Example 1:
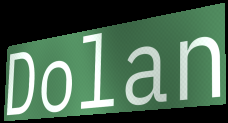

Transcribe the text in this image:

Dolan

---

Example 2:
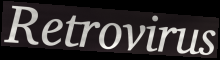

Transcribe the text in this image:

Retrovirus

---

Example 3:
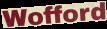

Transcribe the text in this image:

Wofford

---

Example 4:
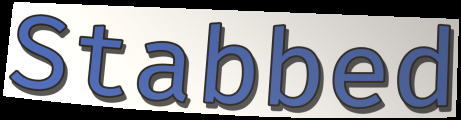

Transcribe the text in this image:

Stabbed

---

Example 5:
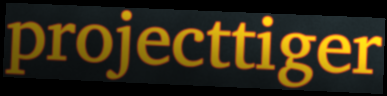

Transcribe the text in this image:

projecttiger